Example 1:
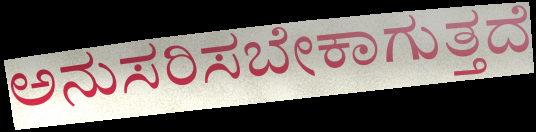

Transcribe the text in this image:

ಅನುಸರಿಸಬೇಕಾಗುತ್ತದೆ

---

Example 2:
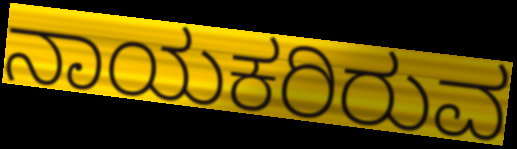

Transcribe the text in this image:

ನಾಯಕರಿರುವ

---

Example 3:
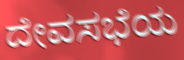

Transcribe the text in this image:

ದೇವಸಭೆಯ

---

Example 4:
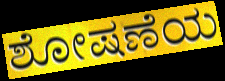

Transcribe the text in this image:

ಶೋಷಣೆಯ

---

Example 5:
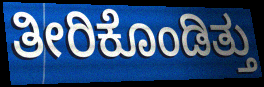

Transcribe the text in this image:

ತೀರಿಕೊಂಡಿತ್ತು